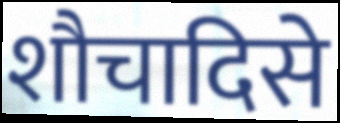
शौचादिसे